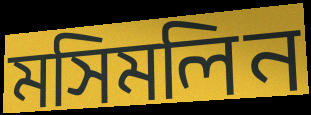
মসিমলিন